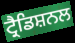
ਟ੍ਰੈਡਿਸ਼ਨਲ